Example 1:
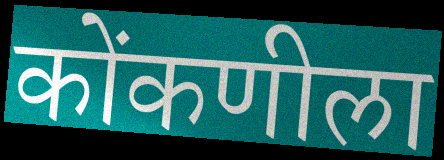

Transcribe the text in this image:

कोंकणीला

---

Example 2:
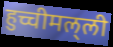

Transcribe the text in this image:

हुच्चीमल्ली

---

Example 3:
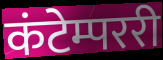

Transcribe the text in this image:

कंटेम्पररी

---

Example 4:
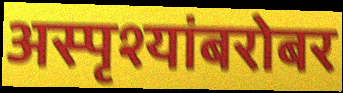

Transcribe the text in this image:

अस्पृश्यांबरोबर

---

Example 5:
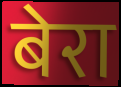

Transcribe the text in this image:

बेरा